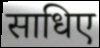
साधिए